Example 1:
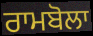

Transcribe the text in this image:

ਰਾਮਬੋਲਾ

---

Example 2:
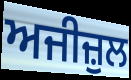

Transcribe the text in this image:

ਅਜੀਜ਼ੁਲ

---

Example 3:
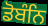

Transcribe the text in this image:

ਡੋਬੰਨਿ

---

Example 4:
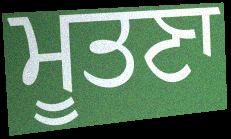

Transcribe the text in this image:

ਮੂਤਣਾ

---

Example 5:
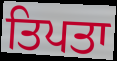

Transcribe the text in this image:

ਤਿਪਤਾ